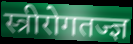
स्‍त्रीरोगतज्‍ज्ञ